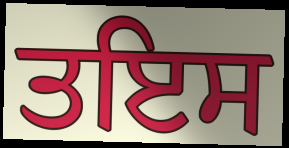
ਤਇਸ